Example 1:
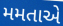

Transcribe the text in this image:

મમતાએ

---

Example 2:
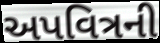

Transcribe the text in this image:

અપવિત્રની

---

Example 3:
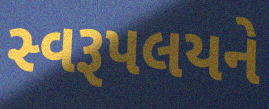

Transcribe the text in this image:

સ્વરૂપલયને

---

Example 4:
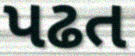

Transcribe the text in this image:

પઢત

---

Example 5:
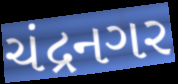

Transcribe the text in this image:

ચંદ્રનગર